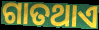
ଗାତଥାଏ